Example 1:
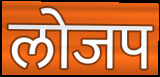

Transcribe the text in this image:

लोजप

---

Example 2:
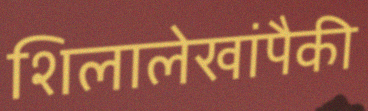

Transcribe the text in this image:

शिलालेखांपैकी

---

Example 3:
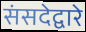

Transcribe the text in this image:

संसदेद्वारे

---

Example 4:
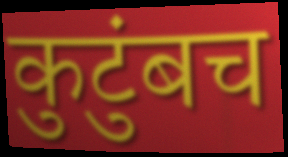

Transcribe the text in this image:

कुटुंबच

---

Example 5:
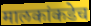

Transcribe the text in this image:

मालकांकडेच